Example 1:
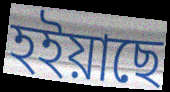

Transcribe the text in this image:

হইয়াছে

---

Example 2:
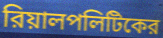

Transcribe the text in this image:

রিয়ালপলিটিকের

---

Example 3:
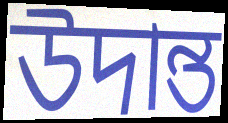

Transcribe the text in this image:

উদান্ত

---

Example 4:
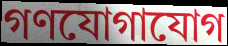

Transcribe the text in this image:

গণযোগাযোগ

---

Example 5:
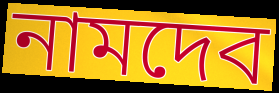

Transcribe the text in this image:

নামদেব